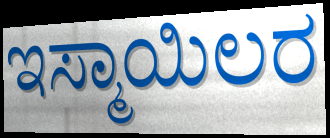
ಇಸ್ಮಾಯಿಲರ